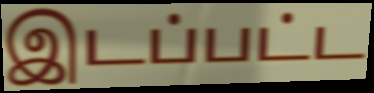
இடப்பட்ட